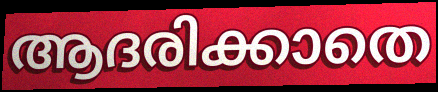
ആദരിക്കാതെ